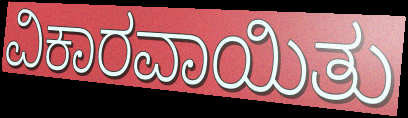
ವಿಕಾರವಾಯಿತು